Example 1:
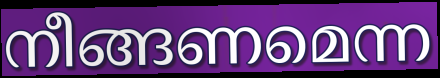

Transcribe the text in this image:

നീങ്ങണമെന്ന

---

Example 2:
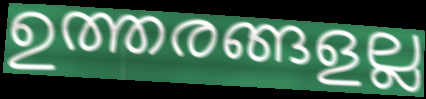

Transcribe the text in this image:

ഉത്തരങ്ങളല്ല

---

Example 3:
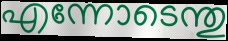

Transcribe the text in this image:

എന്നോടെന്തു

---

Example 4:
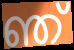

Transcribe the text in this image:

ഞ്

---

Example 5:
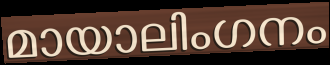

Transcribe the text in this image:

മായാലിംഗനം